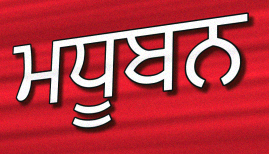
ਮਧੂਬਨ